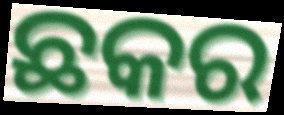
ଛକର